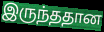
இருந்ததான